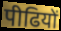
पीढियों